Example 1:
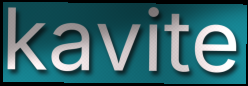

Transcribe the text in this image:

kavite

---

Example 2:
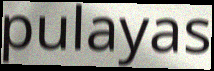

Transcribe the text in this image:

pulayas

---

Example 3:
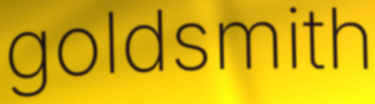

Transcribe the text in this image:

goldsmith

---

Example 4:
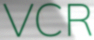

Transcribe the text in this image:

VCR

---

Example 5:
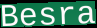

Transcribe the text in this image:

Besra